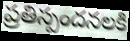
ప్రతిస్పందనలకి